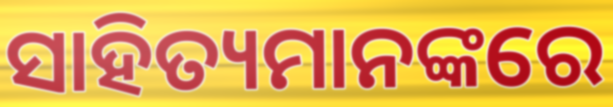
ସାହିତ୍ୟମାନଙ୍କରେ